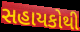
સહાયકોથી